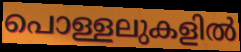
പൊള്ളലുകളിൽ